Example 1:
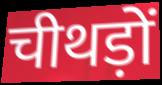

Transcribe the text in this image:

चीथड़ों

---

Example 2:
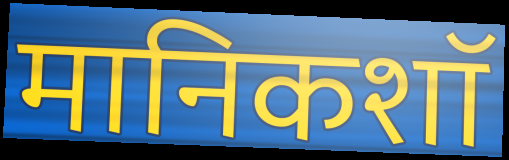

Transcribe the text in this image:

मानिकशॉ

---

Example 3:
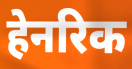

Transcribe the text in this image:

हेनरिक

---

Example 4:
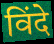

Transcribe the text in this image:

विंदे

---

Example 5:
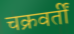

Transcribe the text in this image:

चक्रवर्तीं